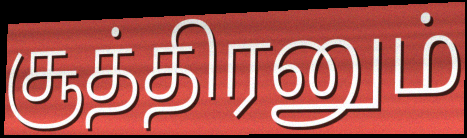
சூத்திரனும்